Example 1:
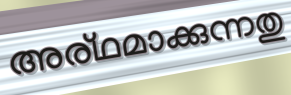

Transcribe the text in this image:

അര്ഥമാക്കുന്നതു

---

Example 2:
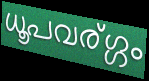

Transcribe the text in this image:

ധൂപവര്ഗ്ഗം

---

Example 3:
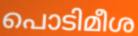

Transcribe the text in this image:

പൊടിമീശ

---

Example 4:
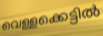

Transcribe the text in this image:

വെള്ളക്കെട്ടിൽ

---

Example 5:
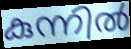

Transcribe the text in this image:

കുന്നിൽ